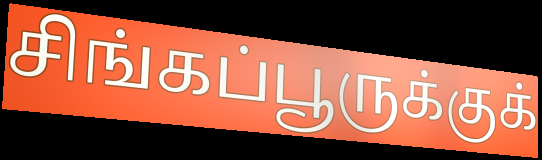
சிங்கப்பூருக்குக்